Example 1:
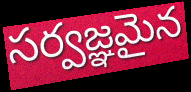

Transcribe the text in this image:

సర్వజ్ఞమైన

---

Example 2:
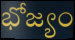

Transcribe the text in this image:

భోజ్యం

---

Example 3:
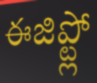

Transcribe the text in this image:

ఈజిప్ట్లో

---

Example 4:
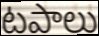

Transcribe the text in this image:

టపాలు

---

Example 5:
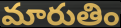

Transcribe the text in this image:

మారుతిం